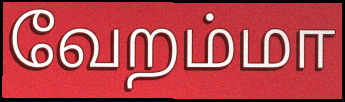
வேறம்மா